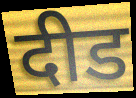
दीड